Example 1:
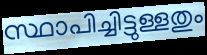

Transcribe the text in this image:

സ്ഥാപിച്ചിട്ടുള്ളതും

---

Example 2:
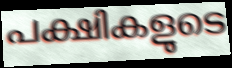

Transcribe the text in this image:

പക്ഷികളുടെ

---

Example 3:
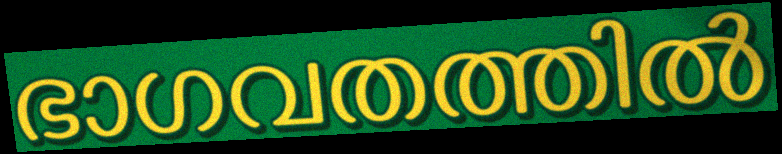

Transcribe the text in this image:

ഭാഗവതത്തിൽ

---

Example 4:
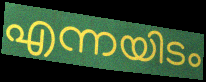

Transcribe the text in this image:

എന്നയിടം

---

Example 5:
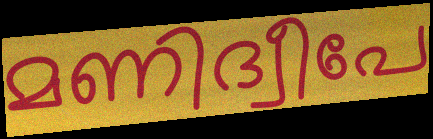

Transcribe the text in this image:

മണിദ്വീപേ